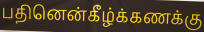
பதினென்கீழ்க்கணக்கு